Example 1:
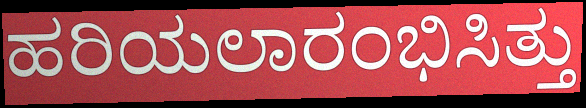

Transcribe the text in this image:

ಹರಿಯಲಾರಂಭಿಸಿತ್ತು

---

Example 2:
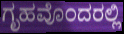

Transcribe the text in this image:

ಗೃಹವೊಂದರಲ್ಲಿ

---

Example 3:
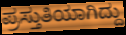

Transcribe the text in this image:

ಪ್ರಸ್ತುತಿಯಾಗಿದ್ದು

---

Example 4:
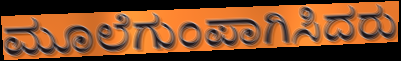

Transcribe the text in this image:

ಮೂಲೆಗುಂಪಾಗಿಸಿದರು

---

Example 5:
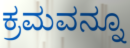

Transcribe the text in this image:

ಕ್ರಮವನ್ನೂ